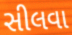
સીલવા